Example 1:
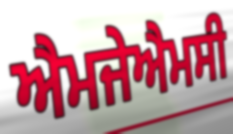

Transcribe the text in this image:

ਐਮਜੇਐਮਸੀ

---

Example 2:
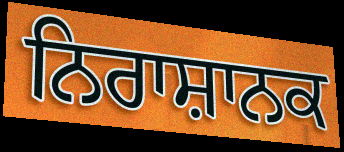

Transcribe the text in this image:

ਨਿਰਾਸ਼ਾਨਕ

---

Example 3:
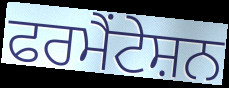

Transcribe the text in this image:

ਫਰਮੈਂਟੇਸ਼ਨ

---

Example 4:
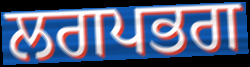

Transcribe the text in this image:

ਲਗਪਭਗ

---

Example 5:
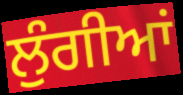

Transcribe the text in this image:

ਲੁੰਗੀਆਂ